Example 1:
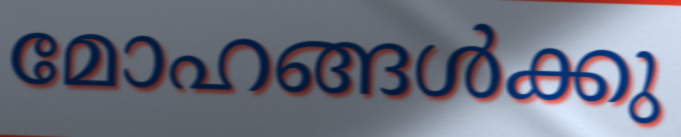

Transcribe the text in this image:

മോഹങ്ങൾക്കു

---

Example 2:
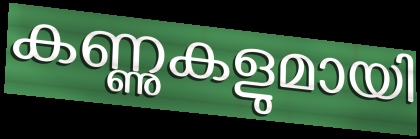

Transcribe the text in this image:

കണ്ണുകളുമായി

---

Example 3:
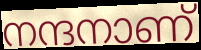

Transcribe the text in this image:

നന്ദനാണ്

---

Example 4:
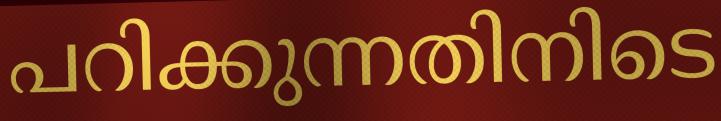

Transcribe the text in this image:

പറിക്കുന്നതിനിടെ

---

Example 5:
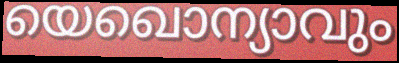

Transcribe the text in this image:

യെഖൊന്യാവും